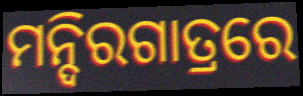
ମନ୍ଦିରଗାତ୍ରରେ